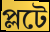
প্লটে